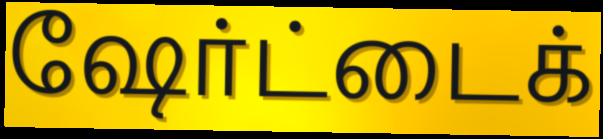
ஷேர்ட்டைக்